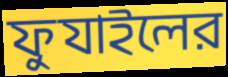
ফুযাইলের